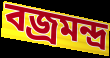
বজ্রমন্দ্র